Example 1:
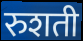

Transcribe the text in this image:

रुशती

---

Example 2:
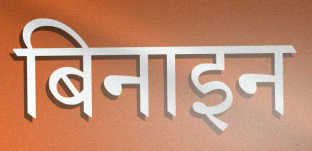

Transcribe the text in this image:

बिनाइन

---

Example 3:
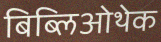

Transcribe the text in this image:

बिब्लिओथेक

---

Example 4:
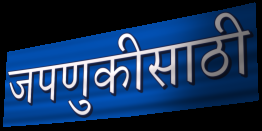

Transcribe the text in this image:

जपणुकीसाठी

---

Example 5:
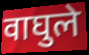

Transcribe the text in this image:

वाघुले